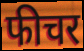
फीचर